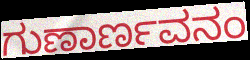
ಗುಣಾರ್ಣವನಂ